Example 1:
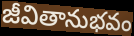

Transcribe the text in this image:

జీవితానుభవం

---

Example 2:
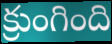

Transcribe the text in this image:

క్రుంగింది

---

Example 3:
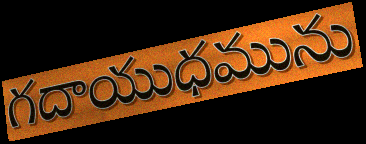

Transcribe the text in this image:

గదాయుధమును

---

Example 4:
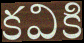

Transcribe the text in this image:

కవికి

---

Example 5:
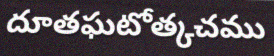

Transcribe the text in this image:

దూతఘటోత్కచము